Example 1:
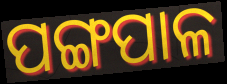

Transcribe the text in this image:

ପଙ୍ଗପାଳ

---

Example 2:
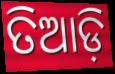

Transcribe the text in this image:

ତିଆଡ଼ି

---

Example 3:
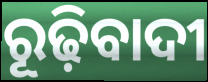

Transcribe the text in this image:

ରୂଢ଼ିବାଦୀ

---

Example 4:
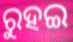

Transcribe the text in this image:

ରୁହଇ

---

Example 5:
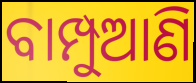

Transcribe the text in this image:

ବାମ୍ପୁଆଣି